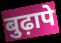
बुढ़ापे